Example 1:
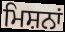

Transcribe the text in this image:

ਮਿਸ਼ਨਾਂ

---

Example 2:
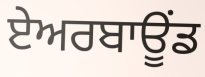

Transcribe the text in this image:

ਏਅਰਬਾਊਂਡ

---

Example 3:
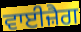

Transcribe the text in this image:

ਵਾਈਜ਼ੈਗ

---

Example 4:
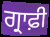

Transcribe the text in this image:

ਗ੍ਰਾਫ਼ੀ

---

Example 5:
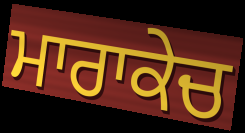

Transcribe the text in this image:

ਮਾਰਾਕੇਚ